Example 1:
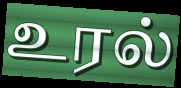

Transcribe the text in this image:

உரல்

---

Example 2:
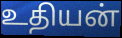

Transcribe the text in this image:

உதியன்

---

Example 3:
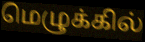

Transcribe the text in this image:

மெழுக்கில்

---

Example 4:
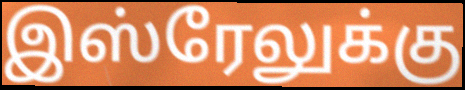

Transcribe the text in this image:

இஸ்ரேலுக்கு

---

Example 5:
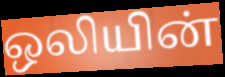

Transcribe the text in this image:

ஒலியின்